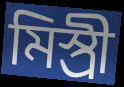
মিস্ত্ৰী